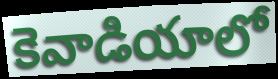
కెవాడియాలో